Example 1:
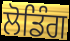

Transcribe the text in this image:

ਲੋਡਿੰਗ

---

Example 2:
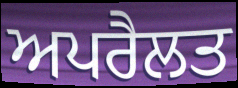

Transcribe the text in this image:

ਅਪਰੈਲਤ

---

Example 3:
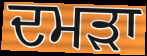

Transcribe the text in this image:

ਦਮੜਾ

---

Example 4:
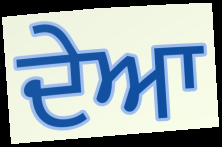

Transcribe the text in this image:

ਦੇਆ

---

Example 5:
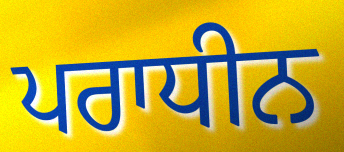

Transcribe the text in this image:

ਪਰਾਧੀਨ